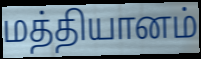
மத்தியானம்